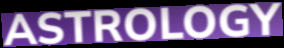
ASTROLOGY